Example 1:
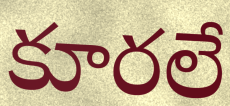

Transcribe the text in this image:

కూరలే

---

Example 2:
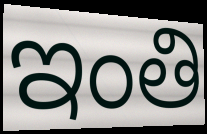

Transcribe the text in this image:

ఇంతి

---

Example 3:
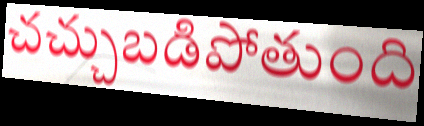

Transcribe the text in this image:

చచ్చుబడిపోతుంది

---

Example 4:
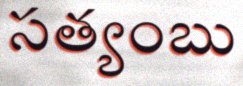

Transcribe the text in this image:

సత్యంబు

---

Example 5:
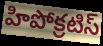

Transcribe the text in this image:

హిపోక్రటిస్